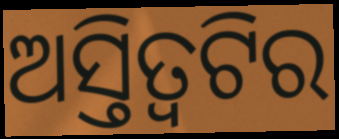
ଅସ୍ତିତ୍ୱଟିର